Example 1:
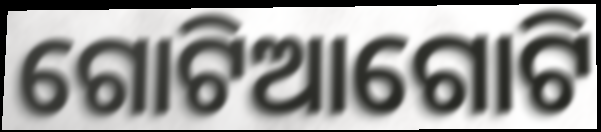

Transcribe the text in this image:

ଗୋଟିଆଗୋଟି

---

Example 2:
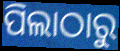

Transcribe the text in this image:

ପିଲାଠାରୁ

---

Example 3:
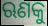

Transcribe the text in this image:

ଋଣକୁ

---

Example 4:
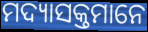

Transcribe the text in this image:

ମଦ୍ୟାସକ୍ତମାନେ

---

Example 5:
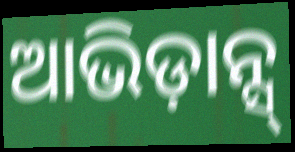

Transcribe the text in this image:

ଆଭିଡ଼ାନ୍ସ୍